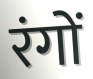
रंगों